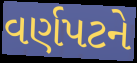
વર્ણપટને